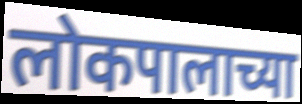
लोकपालाच्या